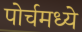
पोर्चमध्ये